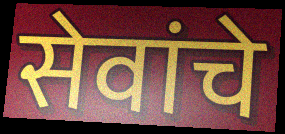
सेवांचे